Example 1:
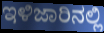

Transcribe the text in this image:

ಇಳಿಜಾರಿನಲ್ಲಿ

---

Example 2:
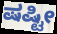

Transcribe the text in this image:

ಷಷ್ಟೀ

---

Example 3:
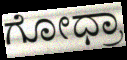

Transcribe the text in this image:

ಗೋಧ್ರಾ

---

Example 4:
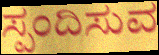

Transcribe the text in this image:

ಸ್ಪಂದಿಸುವ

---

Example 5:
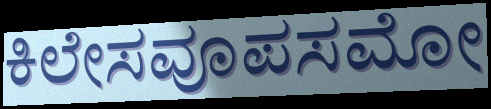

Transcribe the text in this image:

ಕಿಲೇಸವೂಪಸಮೋ